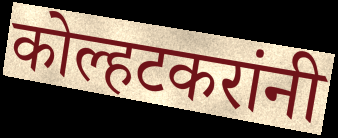
कोल्हटकरांनी